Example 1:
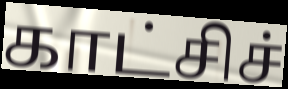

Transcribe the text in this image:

காட்சிச்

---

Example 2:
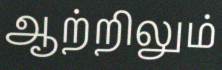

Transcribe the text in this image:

ஆற்றிலும்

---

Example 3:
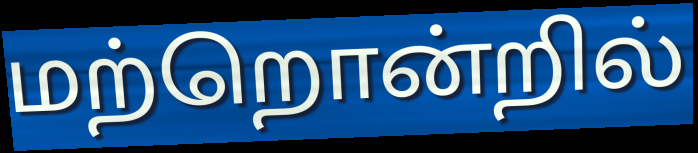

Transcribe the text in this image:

மற்றொன்றில்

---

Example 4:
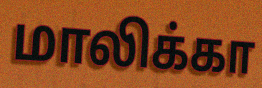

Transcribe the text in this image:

மாலிக்கா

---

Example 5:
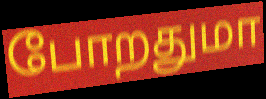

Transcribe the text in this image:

போறதுமா